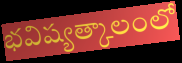
భవిష్యత్కాలంలో